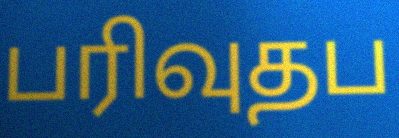
பரிவுதப